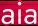
aia